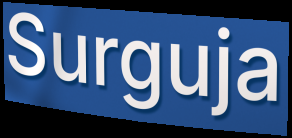
Surguja